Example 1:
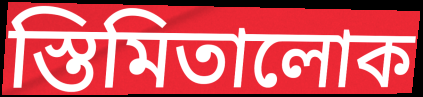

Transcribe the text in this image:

স্তিমিতালোক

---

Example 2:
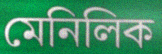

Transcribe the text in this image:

মেনিলিক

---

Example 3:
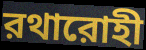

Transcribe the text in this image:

রথারোহী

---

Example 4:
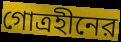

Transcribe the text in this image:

গোত্রহীনের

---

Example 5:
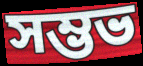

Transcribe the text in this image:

সম্ভভ